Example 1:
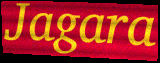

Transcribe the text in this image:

Jagara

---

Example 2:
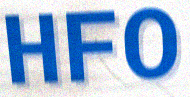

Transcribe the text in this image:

HFO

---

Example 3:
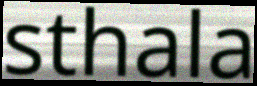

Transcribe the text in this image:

sthala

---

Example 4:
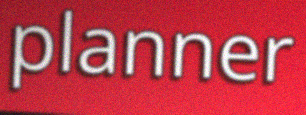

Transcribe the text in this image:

planner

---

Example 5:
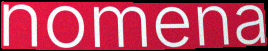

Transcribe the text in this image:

nomena